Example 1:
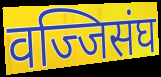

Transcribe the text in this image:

वज्जिसंघ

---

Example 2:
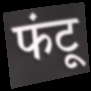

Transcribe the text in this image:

फंटू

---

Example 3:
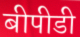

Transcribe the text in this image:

बीपीडी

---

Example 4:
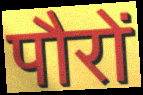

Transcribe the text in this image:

पौरों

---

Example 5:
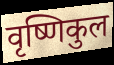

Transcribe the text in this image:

वृष्णिकुल